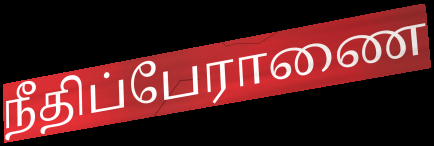
நீதிப்பேராணை